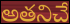
అతనిచే